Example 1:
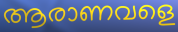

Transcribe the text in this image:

ആരാണവളെ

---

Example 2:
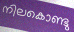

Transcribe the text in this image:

നിലകൊണ്ടു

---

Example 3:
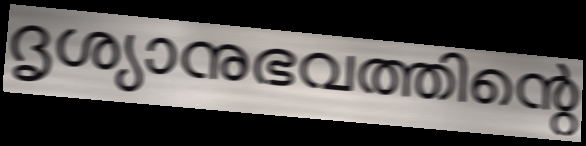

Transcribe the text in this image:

ദൃശ്യാനുഭവത്തിന്റെ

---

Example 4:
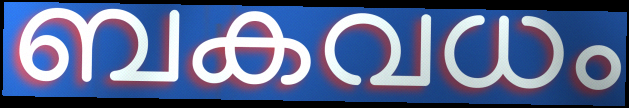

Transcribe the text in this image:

ബകവധം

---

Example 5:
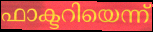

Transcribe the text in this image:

ഫാക്ടറിയെന്ന്